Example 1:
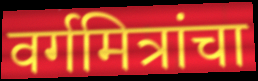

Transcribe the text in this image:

वर्गमित्रांचा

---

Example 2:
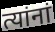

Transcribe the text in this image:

त्यांनां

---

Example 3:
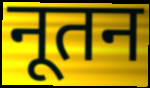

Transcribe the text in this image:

नूतन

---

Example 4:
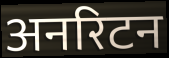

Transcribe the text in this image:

अनरिटन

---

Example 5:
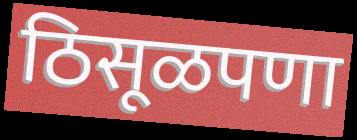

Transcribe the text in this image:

ठिसूळपणा